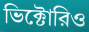
ভিক্টোরিও